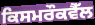
ਕਿਸਮਰੌਕਵੈੱਲ